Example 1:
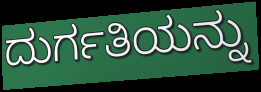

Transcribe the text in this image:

ದುರ್ಗತಿಯನ್ನು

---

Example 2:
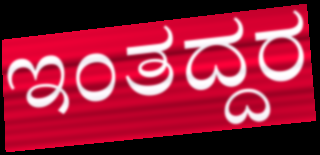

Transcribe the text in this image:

ಇಂತದ್ದರ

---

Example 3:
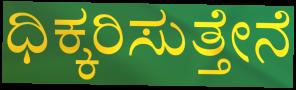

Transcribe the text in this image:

ಧಿಕ್ಕರಿಸುತ್ತೇನೆ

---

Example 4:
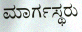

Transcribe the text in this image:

ಮಾರ್ಗಸ್ಥರು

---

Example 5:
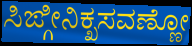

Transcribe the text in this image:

ಸಿಙ್ಗೀನಿಕ್ಖಸವಣ್ಣೋ